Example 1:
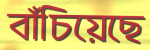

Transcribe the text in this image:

বাঁচিয়েছে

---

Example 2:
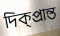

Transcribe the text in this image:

দিক্‌প্রান্ত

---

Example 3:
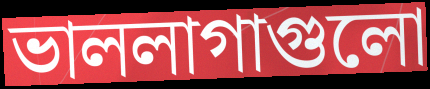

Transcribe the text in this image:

ভাললাগাগুলো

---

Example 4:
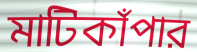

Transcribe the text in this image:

মাটিকাঁপার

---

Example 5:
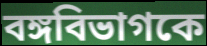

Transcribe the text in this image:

বঙ্গবিভাগকে